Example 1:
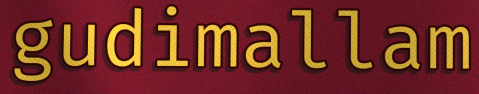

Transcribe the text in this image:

gudimallam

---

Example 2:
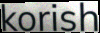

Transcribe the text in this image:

korish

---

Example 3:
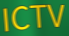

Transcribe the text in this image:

ICTV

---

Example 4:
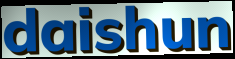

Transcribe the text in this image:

daishun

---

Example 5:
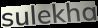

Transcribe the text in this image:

sulekha